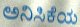
ಅನಿಸಿಕೆಯ